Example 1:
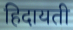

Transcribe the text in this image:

हिदायती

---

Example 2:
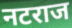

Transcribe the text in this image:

नटराज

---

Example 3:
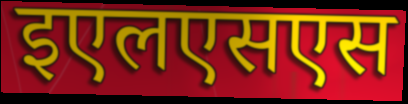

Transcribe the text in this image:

इएलएसएस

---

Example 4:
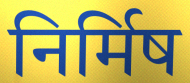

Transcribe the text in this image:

निर्मिष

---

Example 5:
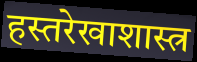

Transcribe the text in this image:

हस्तरेखाशास्त्र